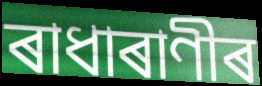
ৰাধাৰাণীৰ